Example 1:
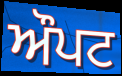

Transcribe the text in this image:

ਔਪਟ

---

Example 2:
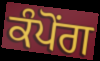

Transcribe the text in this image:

ਕੰਪੋਂਗ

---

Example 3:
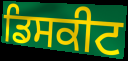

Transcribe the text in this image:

ਡਿਸਕੀਟ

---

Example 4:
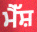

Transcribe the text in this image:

ਮੈੱਸ਼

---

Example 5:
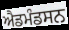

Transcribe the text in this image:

ਐਡਮੰਡਸਨ